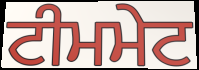
ਟੀਮਮੇਟ